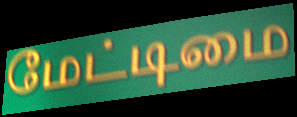
மேட்டிமை